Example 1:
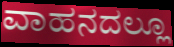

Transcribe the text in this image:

ವಾಹನದಲ್ಲೂ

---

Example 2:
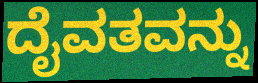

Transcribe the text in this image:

ದೈವತವನ್ನು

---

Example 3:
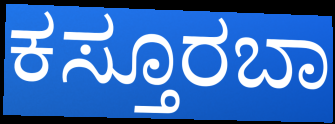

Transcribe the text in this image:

ಕಸ್ತೂರಬಾ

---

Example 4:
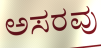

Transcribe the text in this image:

ಅಸರವು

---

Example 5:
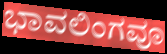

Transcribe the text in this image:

ಭಾವಲಿಂಗವೂ